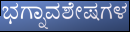
ಭಗ್ನಾವಶೇಷಗಳ